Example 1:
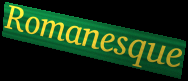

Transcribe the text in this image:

Romanesque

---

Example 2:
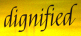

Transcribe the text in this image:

dignified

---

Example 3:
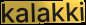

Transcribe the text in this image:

kalakki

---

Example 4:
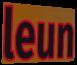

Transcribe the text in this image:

leun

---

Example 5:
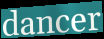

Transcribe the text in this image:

dancer